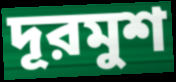
দূরমুশ